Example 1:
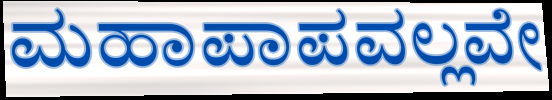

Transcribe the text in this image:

ಮಹಾಪಾಪವಲ್ಲವೇ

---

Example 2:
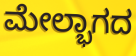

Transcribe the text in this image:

ಮೇಲ್ಭಾಗದ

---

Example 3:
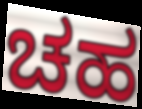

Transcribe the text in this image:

ಚಹ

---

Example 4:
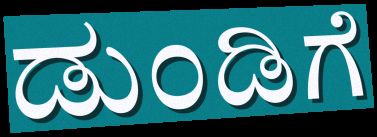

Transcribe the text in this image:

ಡುಂಡಿಗೆ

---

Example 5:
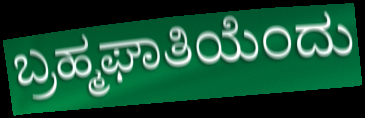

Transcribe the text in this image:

ಬ್ರಹ್ಮಘಾತಿಯೆಂದು